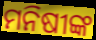
ମନିଷୀଙ୍କ